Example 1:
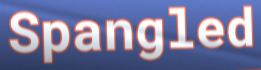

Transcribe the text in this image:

Spangled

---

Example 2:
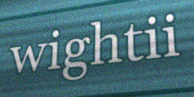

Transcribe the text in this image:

wightii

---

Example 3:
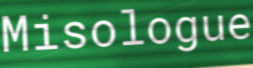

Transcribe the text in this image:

Misologue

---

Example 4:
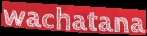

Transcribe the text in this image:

wachatana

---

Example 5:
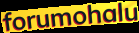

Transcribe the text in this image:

forumohalu